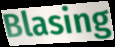
Blasing